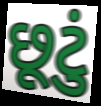
છૂટું